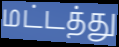
மட்டத்து